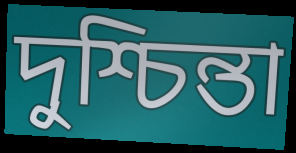
দুশ্চিন্তা